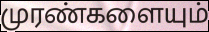
முரண்களையும்